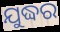
ଯୁଦ୍ଧର